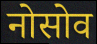
नोसोव